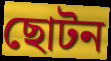
ছোটন